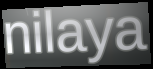
nilaya